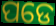
ପଡେ